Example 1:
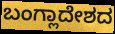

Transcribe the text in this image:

ಬಂಗ್ಲಾದೇಶದ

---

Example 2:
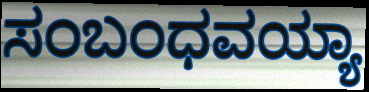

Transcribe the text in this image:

ಸಂಬಂಧವಯ್ಯಾ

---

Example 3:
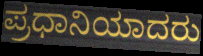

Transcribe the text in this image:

ಪ್ರಧಾನಿಯಾದರು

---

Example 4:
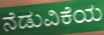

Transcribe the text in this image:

ನೆಡುವಿಕೆಯ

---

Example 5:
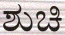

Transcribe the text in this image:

ಶುಚಿ